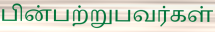
பின்பற்றுபவர்கள்